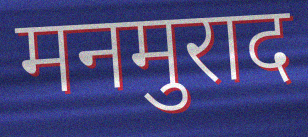
मनमुराद